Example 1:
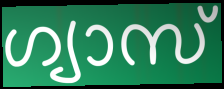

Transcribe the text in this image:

ഗ്യാസ്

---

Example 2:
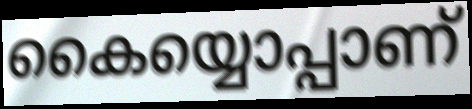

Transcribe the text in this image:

കൈയ്യൊപ്പാണ്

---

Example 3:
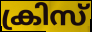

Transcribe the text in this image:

ക്രിസ്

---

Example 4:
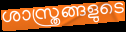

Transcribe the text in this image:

ശാസ്ത്രങ്ങളുടെ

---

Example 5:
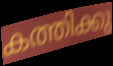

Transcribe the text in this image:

കത്തിക്കു